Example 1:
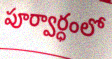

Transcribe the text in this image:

పూర్వార్ధంలో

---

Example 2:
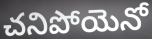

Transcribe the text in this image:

చనిపోయెనో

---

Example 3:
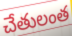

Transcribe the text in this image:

చేతులంత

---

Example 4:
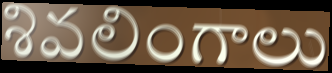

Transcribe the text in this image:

శివలింగాలు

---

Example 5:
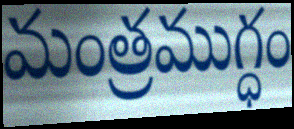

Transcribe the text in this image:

మంత్రముగ్ధం